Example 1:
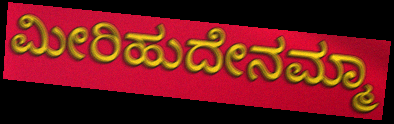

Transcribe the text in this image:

ಮೀರಿಹುದೇನಮ್ಮಾ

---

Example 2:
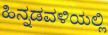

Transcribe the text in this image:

ಹಿನ್ನಡವಳಿಯಲ್ಲಿ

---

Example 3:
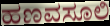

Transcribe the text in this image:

ಹಣವಸೂಲಿ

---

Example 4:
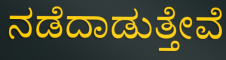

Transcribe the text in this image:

ನಡೆದಾಡುತ್ತೇವೆ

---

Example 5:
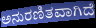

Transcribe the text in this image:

ಅನುರಣಿತವಾಗಿದೆ